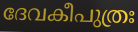
ദേവകീപുത്രഃ